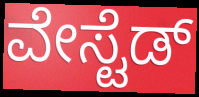
ವೇಸ್ಟೆಡ್